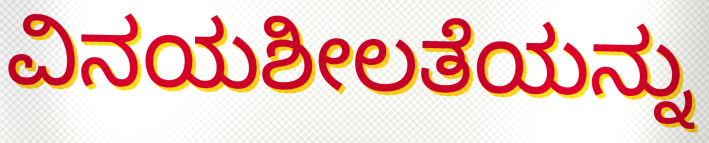
ವಿನಯಶೀಲತೆಯನ್ನು